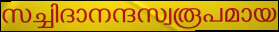
സച്ചിദാനന്ദസ്വരൂപമായ